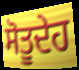
ਸੋਤੂਦੇਹ